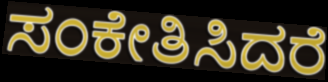
ಸಂಕೇತಿಸಿದರೆ